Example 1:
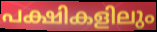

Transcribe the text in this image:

പക്ഷികളിലും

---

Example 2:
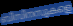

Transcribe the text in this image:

ബിസിനസുകളെ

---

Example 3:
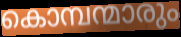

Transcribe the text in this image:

കൊമ്പന്മാരും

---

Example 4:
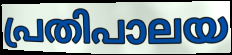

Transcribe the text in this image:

പ്രതിപാലയ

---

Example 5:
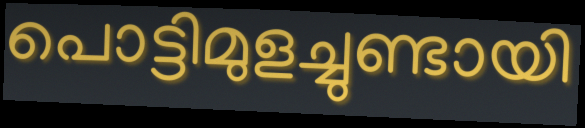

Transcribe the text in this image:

പൊട്ടിമുളച്ചുണ്ടായി